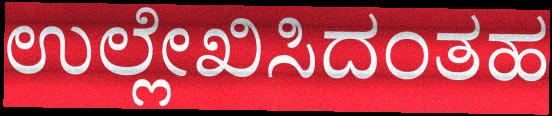
ಉಲ್ಲೇಖಿಸಿದಂತಹ